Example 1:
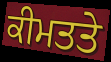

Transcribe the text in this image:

ਕੀਮਤਤੇ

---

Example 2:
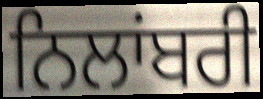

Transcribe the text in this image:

ਨਿਲਾਂਬਰੀ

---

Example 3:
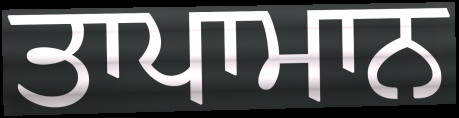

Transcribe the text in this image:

ਤਾਪਾਮਾਨ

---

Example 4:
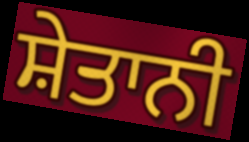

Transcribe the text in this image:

ਸ਼ੇਤਾਨੀ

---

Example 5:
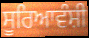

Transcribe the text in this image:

ਸੂਰਿਆਵੰਸ਼ੀ